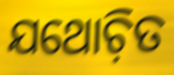
ଯଥୋଚ଼ିତ